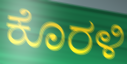
ಕೊರಳಿ